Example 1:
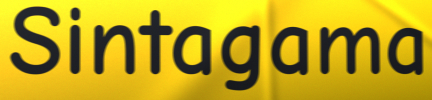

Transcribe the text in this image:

Sintagama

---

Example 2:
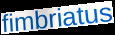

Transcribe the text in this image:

fimbriatus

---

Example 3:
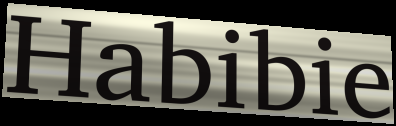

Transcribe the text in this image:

Habibie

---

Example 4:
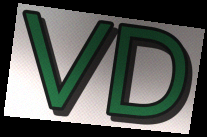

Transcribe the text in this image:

VD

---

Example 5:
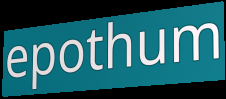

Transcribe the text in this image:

epothum